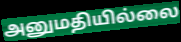
அனுமதியில்லை